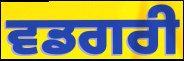
ਵਡਗਰੀ